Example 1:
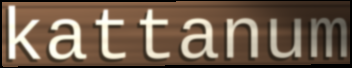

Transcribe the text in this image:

kattanum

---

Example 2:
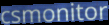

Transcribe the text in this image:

csmonitor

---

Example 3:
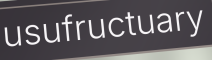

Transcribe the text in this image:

usufructuary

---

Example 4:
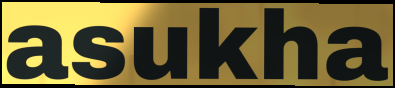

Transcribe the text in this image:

asukha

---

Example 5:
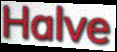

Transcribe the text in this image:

Halve